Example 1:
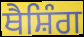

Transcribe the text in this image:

ਥੈਸ਼ਿੰਗ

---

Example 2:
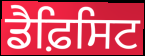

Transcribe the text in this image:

ਡੈਫ਼ਿਸਿਟ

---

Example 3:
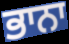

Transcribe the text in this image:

ਭਾਨਾ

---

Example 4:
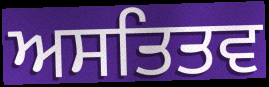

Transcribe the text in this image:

ਅਸਤਿਤਵ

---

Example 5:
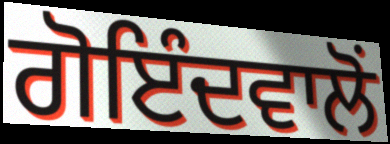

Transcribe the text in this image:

ਗੋਇੰਦਵਾਲੋਂ